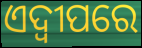
ଏଦ୍ୱୀପରେ